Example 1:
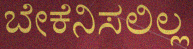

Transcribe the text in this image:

ಬೇಕೆನಿಸಲಿಲ್ಲ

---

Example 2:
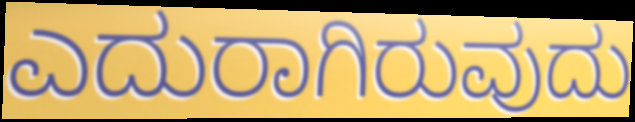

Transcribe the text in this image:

ಎದುರಾಗಿರುವುದು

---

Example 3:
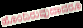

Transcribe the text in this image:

ಹೊಂದಿರುವುದಾದರೂ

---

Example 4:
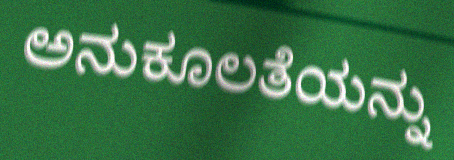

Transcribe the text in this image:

ಅನುಕೂಲತೆಯನ್ನು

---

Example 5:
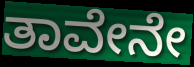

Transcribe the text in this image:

ತಾವೇನೇ